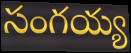
సంగయ్య